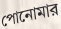
পোনোমার